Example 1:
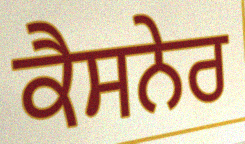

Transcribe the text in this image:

ਕੈਸਨੇਰ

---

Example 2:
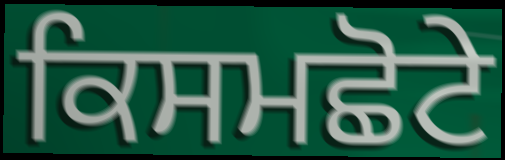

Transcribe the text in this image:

ਕਿਸਮਛੋਟੇ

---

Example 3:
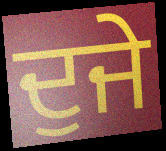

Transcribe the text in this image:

ਦੁਜੇ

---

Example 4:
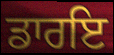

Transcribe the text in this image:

ਡਾਰਇ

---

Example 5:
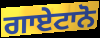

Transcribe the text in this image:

ਗਾਏਟਾਨੋ